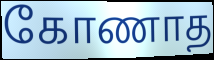
கோணாத